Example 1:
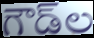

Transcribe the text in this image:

గౌడ్‌ల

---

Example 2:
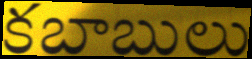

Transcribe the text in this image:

కబాబులు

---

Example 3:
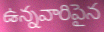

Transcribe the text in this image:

ఉన్నవారిపైన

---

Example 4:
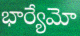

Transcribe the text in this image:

భార్యేమో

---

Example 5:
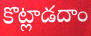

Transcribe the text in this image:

కొట్లాడదాం